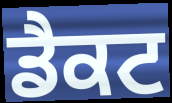
ਡੈਕਟ